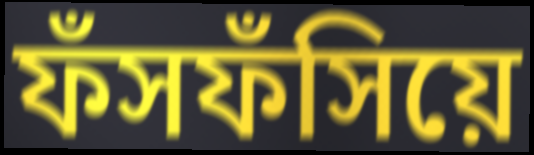
ফঁসফঁসিয়ে